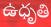
ఉధృతి